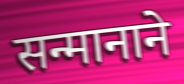
सन्मानाने